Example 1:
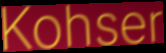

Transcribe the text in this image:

Kohser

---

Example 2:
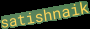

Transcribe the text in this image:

satishnaik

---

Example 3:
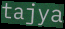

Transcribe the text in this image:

tajya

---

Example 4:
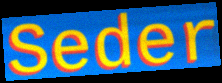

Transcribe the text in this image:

Seder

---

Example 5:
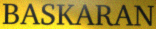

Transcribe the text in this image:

BASKARAN